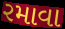
રમાવા